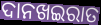
ଦାନଖଇରାତ